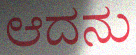
ಆದನು